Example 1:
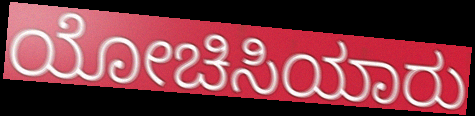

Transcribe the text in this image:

ಯೋಚಿಸಿಯಾರು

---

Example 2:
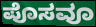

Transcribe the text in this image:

ಪೊಸವೂ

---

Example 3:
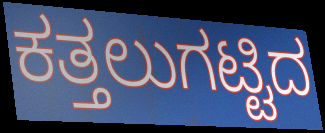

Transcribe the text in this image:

ಕತ್ತಲುಗಟ್ಟಿದ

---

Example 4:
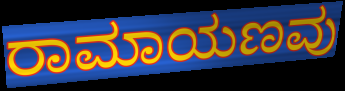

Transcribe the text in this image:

ರಾಮಾಯಣವು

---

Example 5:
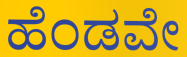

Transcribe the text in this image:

ಹೆಂಡವೇ